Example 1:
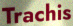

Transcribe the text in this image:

Trachis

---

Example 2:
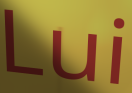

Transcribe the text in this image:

Lui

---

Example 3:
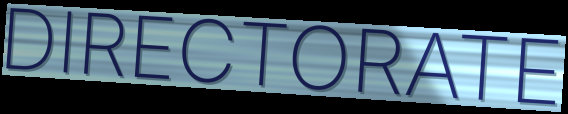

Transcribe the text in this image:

DIRECTORATE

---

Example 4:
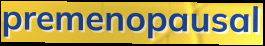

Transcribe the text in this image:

premenopausal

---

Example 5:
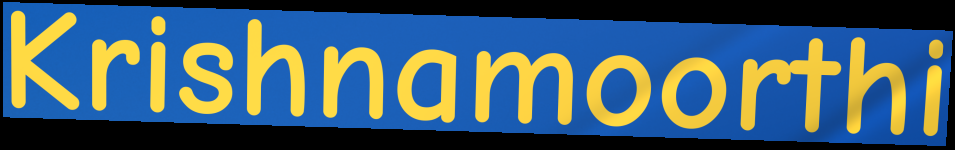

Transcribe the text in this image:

Krishnamoorthi